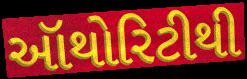
ઑથોરિટીથી